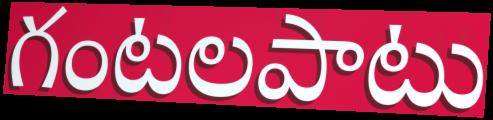
గంటలపాటు